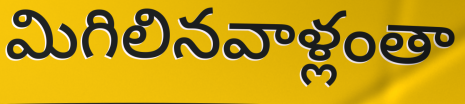
మిగిలినవాళ్లంతా